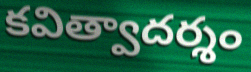
కవిత్వాదర్శం